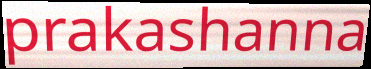
prakashanna